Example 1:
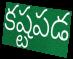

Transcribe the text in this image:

కష్టపడ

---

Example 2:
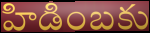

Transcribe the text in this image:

హిడింబకు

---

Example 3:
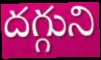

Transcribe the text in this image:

దగ్గుని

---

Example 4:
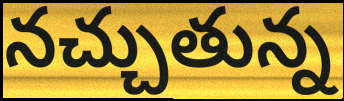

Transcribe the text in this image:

నచ్చుతున్న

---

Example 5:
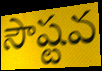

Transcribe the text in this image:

సౌష్టవ